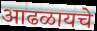
आढळायचे